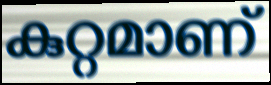
കുറ്റമാണ്